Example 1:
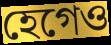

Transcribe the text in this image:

হেগেও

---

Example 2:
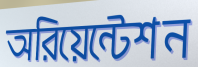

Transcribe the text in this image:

অরিয়েন্টেশন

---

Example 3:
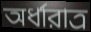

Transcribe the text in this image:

অর্ধারাত্র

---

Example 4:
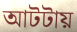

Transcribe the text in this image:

আটটায়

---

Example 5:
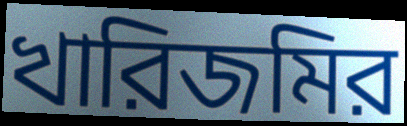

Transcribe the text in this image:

খারিজমির